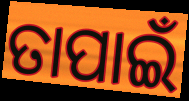
ତାପାଇଁ